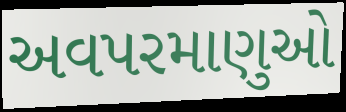
અવપરમાણુઓ